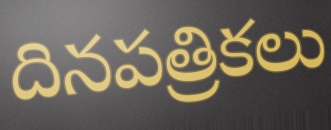
దినపత్రికలు